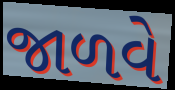
જાળવે